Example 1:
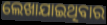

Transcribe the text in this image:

ଲେଖାଯାଇଥିବାର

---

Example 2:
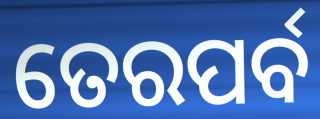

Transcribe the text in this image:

ତେରପର୍ବ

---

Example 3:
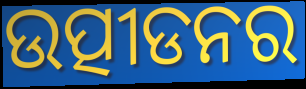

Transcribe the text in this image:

ଉତ୍ପୀଡନର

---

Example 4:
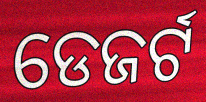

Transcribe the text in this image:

ଡେଜର୍ଟ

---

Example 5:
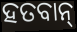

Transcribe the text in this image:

ହତବାନ୍